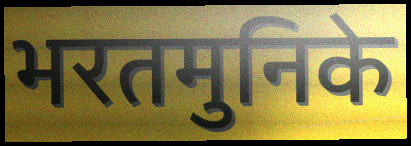
भरतमुनिके